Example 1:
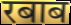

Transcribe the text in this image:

रबाब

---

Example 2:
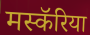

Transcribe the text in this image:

मस्कॅरिया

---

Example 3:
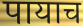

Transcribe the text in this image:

पायाच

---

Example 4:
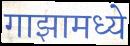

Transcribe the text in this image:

गाझामध्ये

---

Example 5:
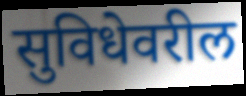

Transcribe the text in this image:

सुविधेवरील